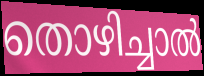
തൊഴിച്ചാൽ